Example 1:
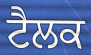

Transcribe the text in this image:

ਟੈਲਕ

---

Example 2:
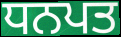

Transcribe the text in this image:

ਧਨਪਤ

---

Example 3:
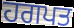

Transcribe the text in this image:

ਹਗਪਤ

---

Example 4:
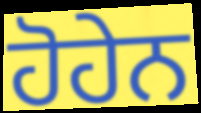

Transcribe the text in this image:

ਹੋਹੇਨ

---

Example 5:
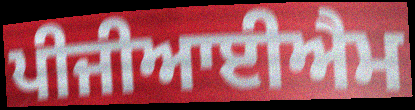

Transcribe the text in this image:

ਪੀਜੀਆਈਐਮ